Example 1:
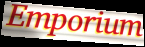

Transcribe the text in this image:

Emporium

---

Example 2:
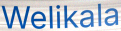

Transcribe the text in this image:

Welikala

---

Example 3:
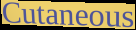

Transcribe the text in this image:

Cutaneous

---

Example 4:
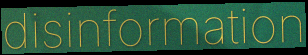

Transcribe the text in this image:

disinformation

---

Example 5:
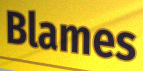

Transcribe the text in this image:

Blames